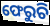
ଫେରୁଚି